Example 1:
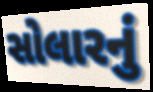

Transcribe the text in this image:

સોલારનું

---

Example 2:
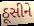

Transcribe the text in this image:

ઠૂસીને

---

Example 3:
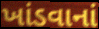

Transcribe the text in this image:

ખાંડવાનાં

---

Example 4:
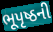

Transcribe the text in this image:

ભૂપૃષ્ઠની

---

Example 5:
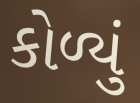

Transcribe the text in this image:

કોળ્યું